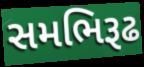
સમભિરૂઢ